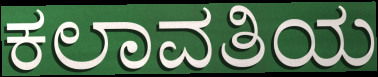
ಕಲಾವತಿಯ